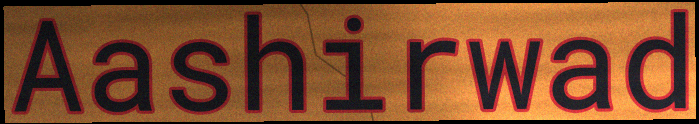
Aashirwad